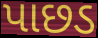
પાછડ